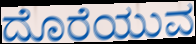
ದೊರೆಯುವ